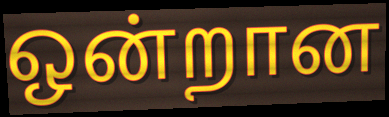
ஒன்றான